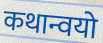
कथान्वयो